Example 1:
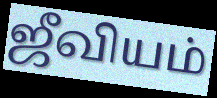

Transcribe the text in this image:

ஜீவியம்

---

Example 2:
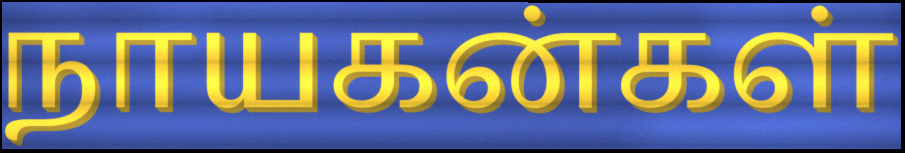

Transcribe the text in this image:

நாயகன்கள்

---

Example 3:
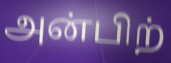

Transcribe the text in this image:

அன்பிற்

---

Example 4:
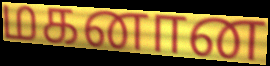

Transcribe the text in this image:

மகனான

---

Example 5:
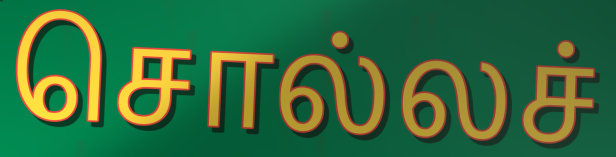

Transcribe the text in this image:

சொல்லச்